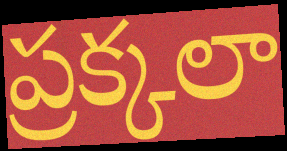
ప్రక్కలా